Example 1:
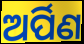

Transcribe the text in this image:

ଅର୍ପିଣ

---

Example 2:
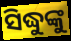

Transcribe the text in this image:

ସିଦ୍ଧୁଙ୍କୁ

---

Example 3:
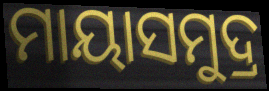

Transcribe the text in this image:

ମାୟାସମୁଦ୍ର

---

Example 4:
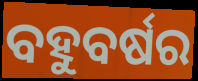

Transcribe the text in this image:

ବହୁବର୍ଷର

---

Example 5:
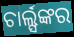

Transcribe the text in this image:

ଚାର୍ଲ୍ସଙ୍କର